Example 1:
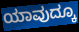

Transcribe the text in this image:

ಯಾವುದ್ಕೂ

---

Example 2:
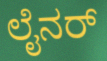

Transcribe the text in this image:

ಲೈನರ್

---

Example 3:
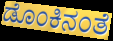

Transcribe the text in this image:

ಡೊಂಕಿನಂತೆ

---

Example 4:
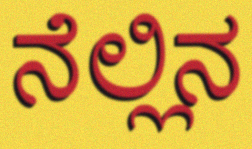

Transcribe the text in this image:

ನೆಲ್ಲಿನ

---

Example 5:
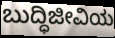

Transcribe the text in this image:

ಬುದ್ಧಿಜೀವಿಯ